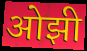
ओझी